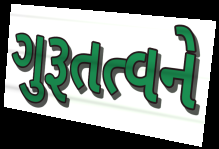
ગુરૂતત્વને